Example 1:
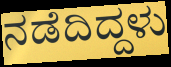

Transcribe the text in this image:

ನಡೆದಿದ್ದಳು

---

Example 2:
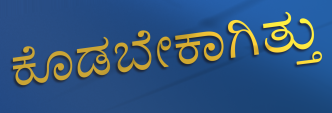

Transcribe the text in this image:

ಕೊಡಬೇಕಾಗಿತ್ತು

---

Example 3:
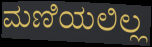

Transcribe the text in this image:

ಮಣಿಯಲಿಲ್ಲ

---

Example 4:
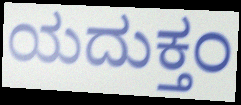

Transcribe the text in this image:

ಯದುಕ್ತಂ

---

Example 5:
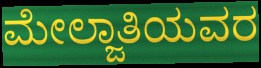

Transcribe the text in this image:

ಮೇಲ್ಜಾತಿಯವರ